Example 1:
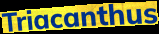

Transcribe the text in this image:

Triacanthus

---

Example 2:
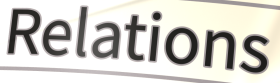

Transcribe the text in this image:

Relations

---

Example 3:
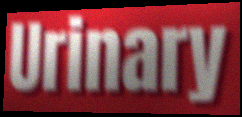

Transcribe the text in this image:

Urinary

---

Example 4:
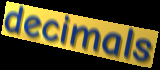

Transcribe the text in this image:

decimals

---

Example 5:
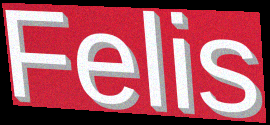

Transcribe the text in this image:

Felis